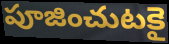
పూజించుటకై